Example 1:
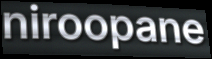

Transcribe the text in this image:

niroopane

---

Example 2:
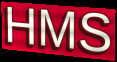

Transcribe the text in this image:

HMS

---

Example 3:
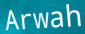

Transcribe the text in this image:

Arwah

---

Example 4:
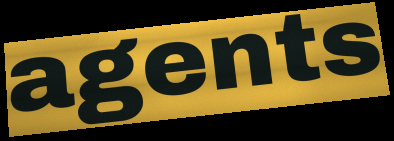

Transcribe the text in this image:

agents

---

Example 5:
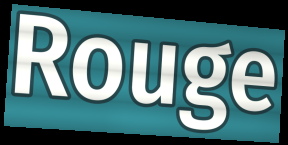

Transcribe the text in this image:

Rouge